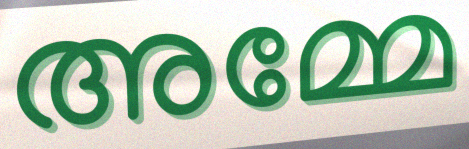
അമ്മേ